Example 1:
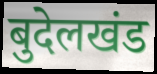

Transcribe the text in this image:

बुदेलखंड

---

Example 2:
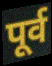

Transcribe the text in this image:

पूर्व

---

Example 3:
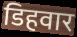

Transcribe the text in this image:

डिहवार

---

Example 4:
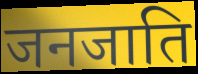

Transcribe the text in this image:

जनजाति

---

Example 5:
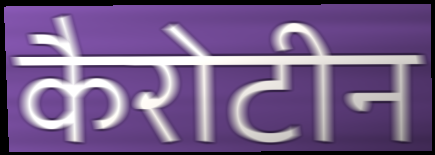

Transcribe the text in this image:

कैरोटीन